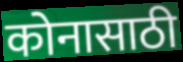
कोनासाठी